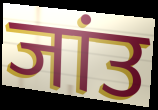
जांउ